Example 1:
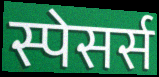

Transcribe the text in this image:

स्पेसर्स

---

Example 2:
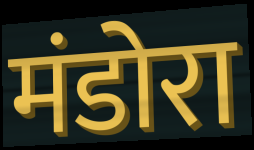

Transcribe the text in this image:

मंडोरा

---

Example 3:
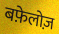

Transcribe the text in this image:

बफ़ेलोज़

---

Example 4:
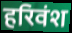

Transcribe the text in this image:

हरिवंश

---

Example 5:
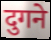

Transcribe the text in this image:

दुगने